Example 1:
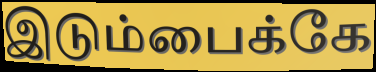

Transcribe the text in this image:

இடும்பைக்கே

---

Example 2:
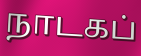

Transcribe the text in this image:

நாடகப்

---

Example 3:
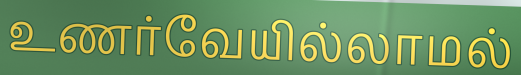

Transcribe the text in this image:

உணர்வேயில்லாமல்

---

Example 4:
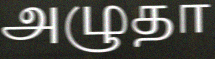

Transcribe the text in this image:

அழுதா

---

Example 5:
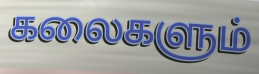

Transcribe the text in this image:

கலைகளும்